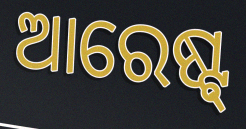
ଆରେଷ୍ଟ୍